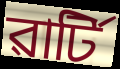
ৱাৰ্টি